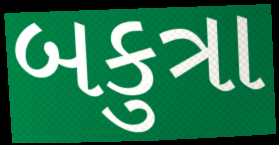
બકુત્રા